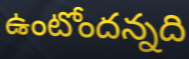
ఉంటోందన్నది